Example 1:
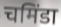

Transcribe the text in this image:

चमिंडा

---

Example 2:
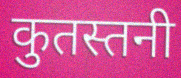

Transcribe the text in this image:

कुतस्तनी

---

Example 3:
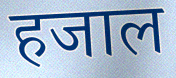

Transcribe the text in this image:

हजाल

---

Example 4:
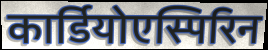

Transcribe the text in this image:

कार्डियोएस्पिरिन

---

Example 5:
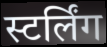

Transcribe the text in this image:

स्‍टर्लिंग